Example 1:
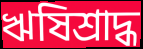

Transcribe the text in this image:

ঋষিশ্রাদ্ধ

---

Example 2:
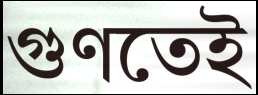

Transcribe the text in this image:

গুণতেই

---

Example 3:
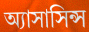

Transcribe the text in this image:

অ্যাসাসিন্স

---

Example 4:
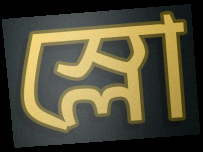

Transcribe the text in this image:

স্লো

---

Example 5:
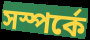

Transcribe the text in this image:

সস্পর্কে